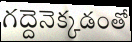
గద్దెనెక్కడంతో